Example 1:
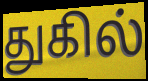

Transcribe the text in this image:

துகில்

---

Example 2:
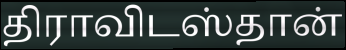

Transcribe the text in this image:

திராவிடஸ்தான்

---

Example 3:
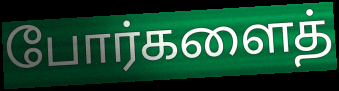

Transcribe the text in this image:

போர்களைத்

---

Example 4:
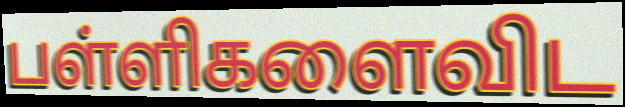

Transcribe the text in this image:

பள்ளிகளைவிட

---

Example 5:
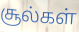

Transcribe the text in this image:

சூல்கள்